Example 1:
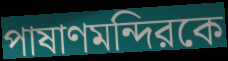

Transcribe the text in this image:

পাষাণমন্দিরকে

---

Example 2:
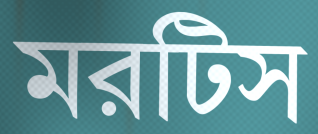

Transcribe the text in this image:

মরটিস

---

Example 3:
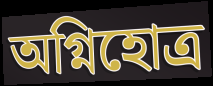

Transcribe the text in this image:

অগ্নিহোত্র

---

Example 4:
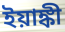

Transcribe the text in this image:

ইয়াঙ্কী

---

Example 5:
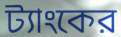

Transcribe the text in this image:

ট্যাংকের